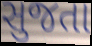
સુજતા